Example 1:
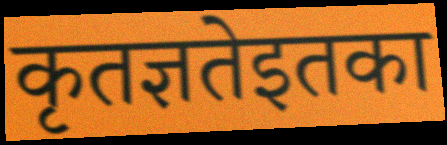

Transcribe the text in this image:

कृतज्ञतेइतका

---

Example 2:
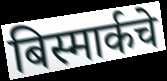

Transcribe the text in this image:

बिस्मार्कचे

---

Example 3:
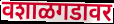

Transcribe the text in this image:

वशाळगडावर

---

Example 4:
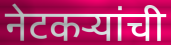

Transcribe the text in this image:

नेटकऱ्यांची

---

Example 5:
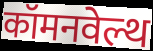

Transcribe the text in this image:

कॉमनवेल्थ